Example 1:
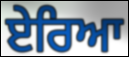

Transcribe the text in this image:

ਏਰਿਆ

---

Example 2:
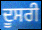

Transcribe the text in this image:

ਦੂਸਰੀ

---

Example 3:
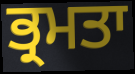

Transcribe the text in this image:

ਭ੍ਰਮਤਾ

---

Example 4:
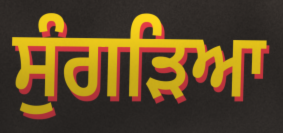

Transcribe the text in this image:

ਸੁੰਗੜਿਆ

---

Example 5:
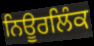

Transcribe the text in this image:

ਨਿਊਰਲਿੰਕ